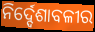
ନିର୍ଦ୍ଦେଶାବଳୀର